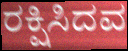
ರಕ್ಷಿಸಿದವ